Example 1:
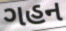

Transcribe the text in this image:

ગહન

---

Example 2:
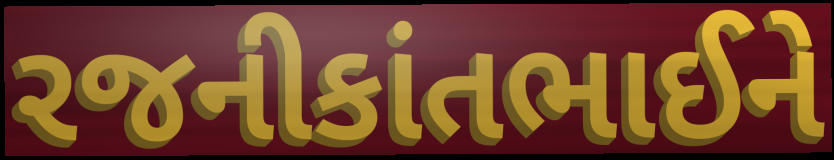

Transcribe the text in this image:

રજનીકાંતભાઈને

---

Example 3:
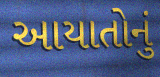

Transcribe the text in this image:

આયાતોનું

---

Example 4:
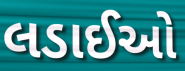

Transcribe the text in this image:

લડાઈઓ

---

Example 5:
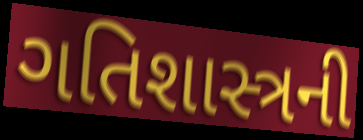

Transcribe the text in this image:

ગતિશાસ્ત્રની